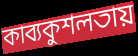
কাব্যকুশলতায়